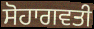
ਸੋਹਾਗਵਤੀ